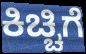
ಕಿಚ್ಚಿಗೆ